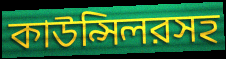
কাউন্সিলরসহ